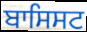
ਬਾਸਿਸਟ